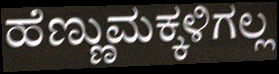
ಹೆಣ್ಣುಮಕ್ಕಳಿಗಲ್ಲ